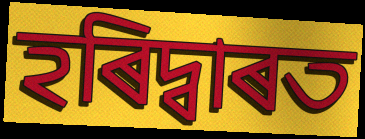
হৰিদ্বাৰত